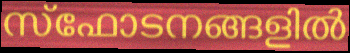
സ്ഫോടനങ്ങളിൽ